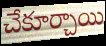
చేకూర్చాయి